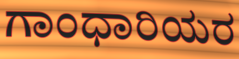
ಗಾಂಧಾರಿಯರ